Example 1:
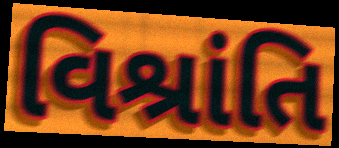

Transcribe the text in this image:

વિશ્રાંતિ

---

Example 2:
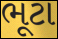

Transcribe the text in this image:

ભૂટા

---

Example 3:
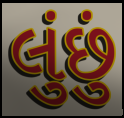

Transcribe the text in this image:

લુંછું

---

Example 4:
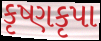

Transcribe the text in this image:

કૃષ્ણકૃપા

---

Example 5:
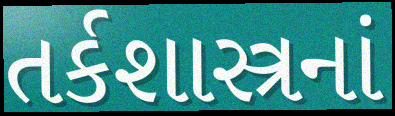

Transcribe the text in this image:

તર્કશાસ્ત્રનાં